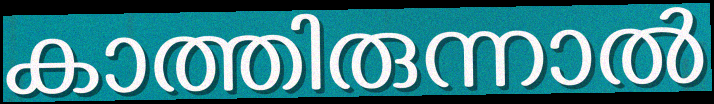
കാത്തിരുന്നാൽ